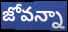
జోవన్నా